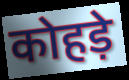
कोहड़े